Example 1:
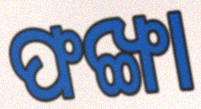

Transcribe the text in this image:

ଫଙ୍ଖା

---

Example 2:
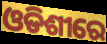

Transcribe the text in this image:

ଓଡିଶୀରେ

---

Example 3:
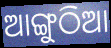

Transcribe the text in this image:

ଆଙ୍ଗୁଠିଆ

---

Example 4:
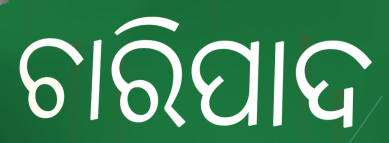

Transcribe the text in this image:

ଚାରିପାଦ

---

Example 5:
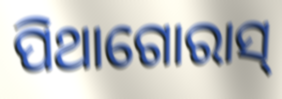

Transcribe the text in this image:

ପିଥାଗୋରାସ୍